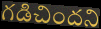
గడిచిందని